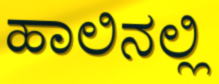
ಹಾಲಿನಲ್ಲಿ